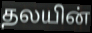
தலயின்